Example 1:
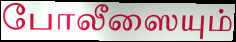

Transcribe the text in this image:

போலீஸையும்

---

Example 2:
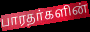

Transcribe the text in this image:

பாரதர்களின்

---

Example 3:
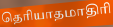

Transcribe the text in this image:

தெரியாதமாதிரி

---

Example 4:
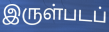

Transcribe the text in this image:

இருள்படப்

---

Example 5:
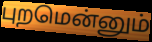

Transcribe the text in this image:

புறமென்னும்